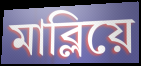
মাব্লিয়ে